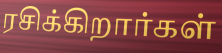
ரசிக்கிறார்கள்